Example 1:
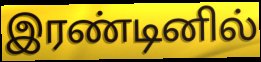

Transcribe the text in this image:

இரண்டினில்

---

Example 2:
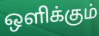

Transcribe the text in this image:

ஒளிக்கும்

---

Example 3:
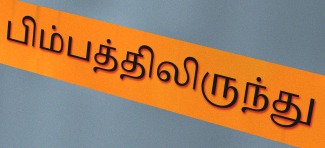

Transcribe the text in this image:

பிம்பத்திலிருந்து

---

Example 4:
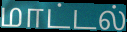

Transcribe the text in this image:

மாட்டல்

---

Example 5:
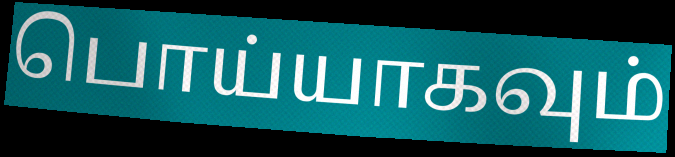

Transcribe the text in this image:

பொய்யாகவும்